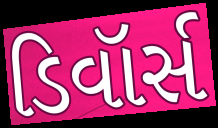
ડિવૉર્સ